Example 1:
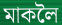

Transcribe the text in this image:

মাকলৈ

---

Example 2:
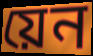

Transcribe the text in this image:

য়েন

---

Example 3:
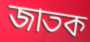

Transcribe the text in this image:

জাতক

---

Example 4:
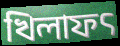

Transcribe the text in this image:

খিলাফৎ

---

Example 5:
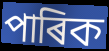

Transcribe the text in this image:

পাৰিক